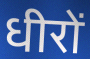
धीरों